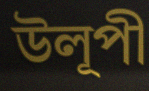
উলূপী